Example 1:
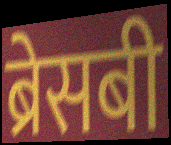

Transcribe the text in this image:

ब्रेसबी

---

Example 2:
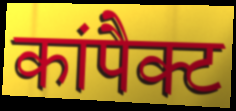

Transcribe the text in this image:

कांपैक्ट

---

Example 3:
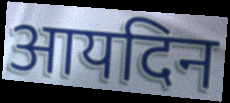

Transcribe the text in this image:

आयदिन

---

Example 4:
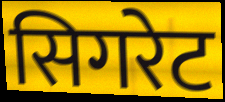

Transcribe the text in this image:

सिगरेट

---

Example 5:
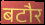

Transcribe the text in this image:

बटौर